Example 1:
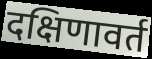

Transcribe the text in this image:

दक्षिणावर्त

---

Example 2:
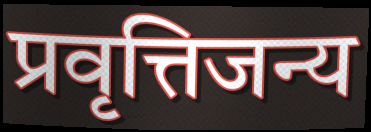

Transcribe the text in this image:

प्रवृत्तिजन्य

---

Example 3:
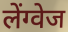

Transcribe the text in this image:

लेंग्वेज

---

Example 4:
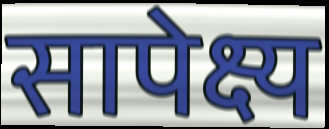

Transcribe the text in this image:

सापेक्ष्य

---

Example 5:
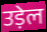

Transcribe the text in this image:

उड़ेल